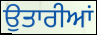
ਉਤਾਰੀਆਂ